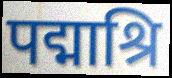
पद्माश्रि